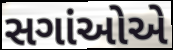
સગાંઓએ